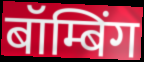
बॉम्बिंग